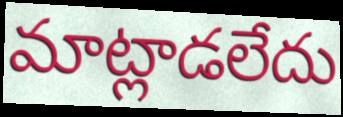
మాట్లాడలేదు